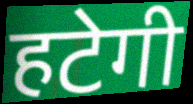
हटेगी